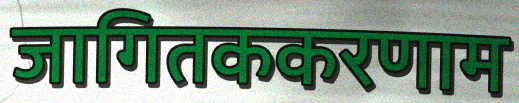
जागितककरणाम